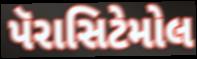
પૅરાસિટેમોલ